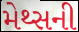
મેથ્સની